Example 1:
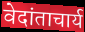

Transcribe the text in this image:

वेदांताचार्य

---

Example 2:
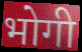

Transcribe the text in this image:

भोगी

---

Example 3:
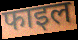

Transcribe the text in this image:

फाइल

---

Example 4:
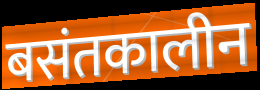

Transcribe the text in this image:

बसंतकालीन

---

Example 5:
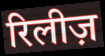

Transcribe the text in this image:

रिलीज़